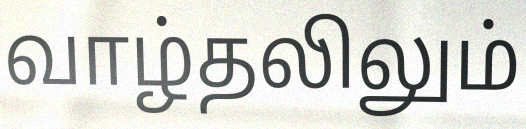
வாழ்தலிலும்